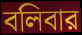
বলিবার